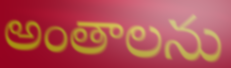
అంతాలను